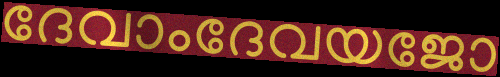
ദേവാംദേവയജോ